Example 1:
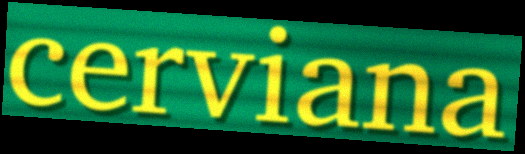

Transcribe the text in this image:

cerviana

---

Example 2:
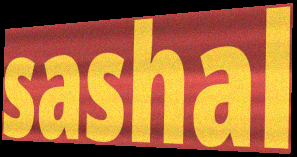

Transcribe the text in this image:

sashal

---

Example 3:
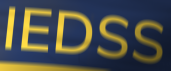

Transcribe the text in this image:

IEDSS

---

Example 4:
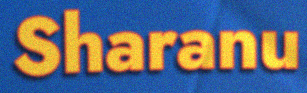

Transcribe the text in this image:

Sharanu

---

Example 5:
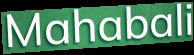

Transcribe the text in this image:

Mahabali